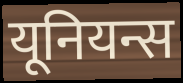
यूनियन्स